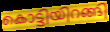
കൊട്ടിയിറങ്ങി